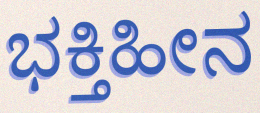
ಭಕ್ತಿಹೀನ